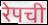
रेपची